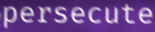
persecute